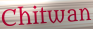
Chitwan